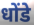
धोंडे